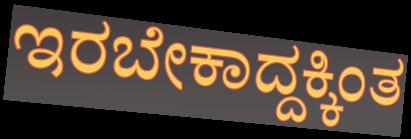
ಇರಬೇಕಾದ್ದಕ್ಕಿಂತ